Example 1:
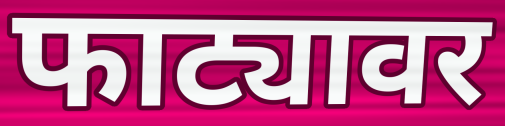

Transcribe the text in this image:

फाट्यावर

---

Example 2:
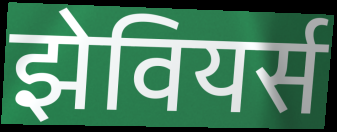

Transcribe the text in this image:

झेवियर्स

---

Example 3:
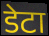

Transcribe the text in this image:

डेटा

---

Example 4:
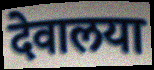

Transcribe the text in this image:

देवालया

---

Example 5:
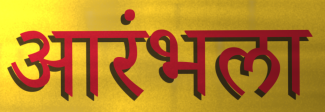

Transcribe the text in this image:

आरंभला